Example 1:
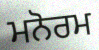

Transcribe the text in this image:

ਮਨੋਰਮ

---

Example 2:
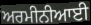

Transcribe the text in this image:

ਅਰਮੀਨੀਆਈ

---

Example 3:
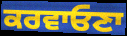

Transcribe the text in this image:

ਕਰਵਾਓਣਾ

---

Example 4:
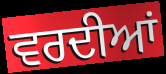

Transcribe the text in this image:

ਵਰਦੀਆਂ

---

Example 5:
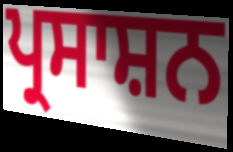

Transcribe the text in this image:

ਪ੍ਰਸਾਸ਼ਨ